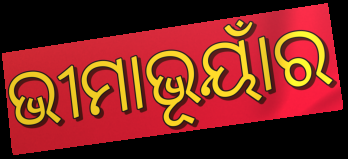
ଭୀମାଭୂୟାଁର